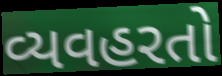
વ્યવહરતો